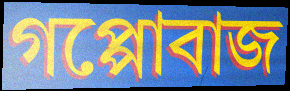
গপ্পোবাজ